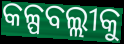
କଳ୍ପବଲ୍ଲୀକୁ